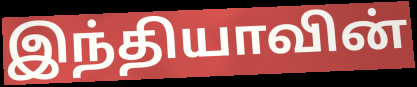
இந்தியாவின்